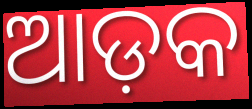
ଆଡ଼କ